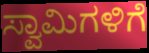
ಸ್ವಾಮಿಗಳಿಗೆ